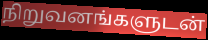
நிறுவனங்களுடன்